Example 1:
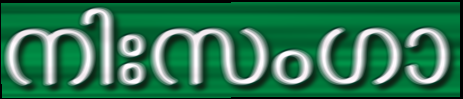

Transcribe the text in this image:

നിഃസംഗാ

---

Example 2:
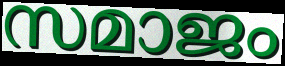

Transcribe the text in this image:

സമാജം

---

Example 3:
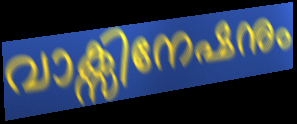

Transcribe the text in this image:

വാക്സിനേഷനും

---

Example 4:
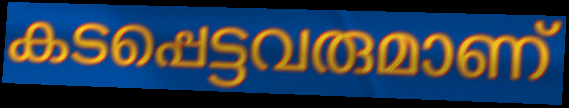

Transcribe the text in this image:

കടപ്പെട്ടവരുമാണ്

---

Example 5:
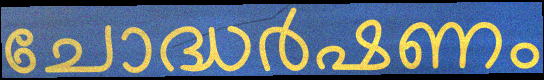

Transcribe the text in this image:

ചോദ്ധർഷണം